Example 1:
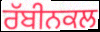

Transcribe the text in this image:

ਰੱਬੀਨਕਲ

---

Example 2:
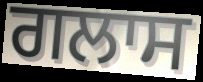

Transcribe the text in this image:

ਗਲਾਸ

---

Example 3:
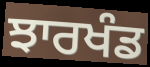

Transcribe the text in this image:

ਝਾਰਖੰਡ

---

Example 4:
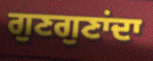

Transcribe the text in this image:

ਗੁਣਗੁਣਾਂਦਾ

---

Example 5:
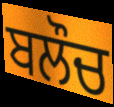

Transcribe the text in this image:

ਬਲੌਚ